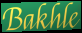
Bakhle